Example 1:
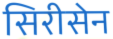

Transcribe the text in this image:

सिरीसेन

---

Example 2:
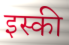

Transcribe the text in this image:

इस्की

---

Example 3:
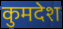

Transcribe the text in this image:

कुमदेश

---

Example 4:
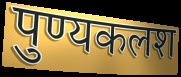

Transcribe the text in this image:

पुण्यकलश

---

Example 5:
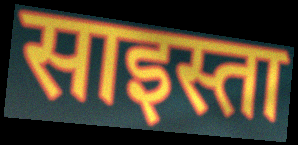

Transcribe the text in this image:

साइस्ता